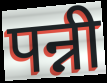
पन्नी